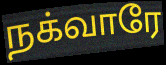
நக்வாரே